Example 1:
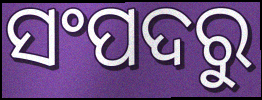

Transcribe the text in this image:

ସଂପଦରୁ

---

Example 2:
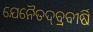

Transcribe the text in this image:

ଯେନୈତଦ୍‌ବ୍ରବୀର୍ଷି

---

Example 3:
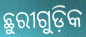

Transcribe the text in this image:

ଛୁରୀଗୁଡ଼ିକ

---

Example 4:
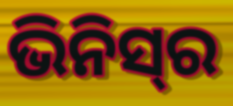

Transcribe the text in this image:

ଭିନିସ୍‌ର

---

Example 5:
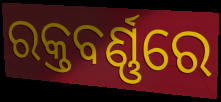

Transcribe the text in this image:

ରକ୍ତବର୍ଣ୍ଣରେ